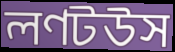
লণটউস